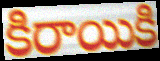
కిరాయికి